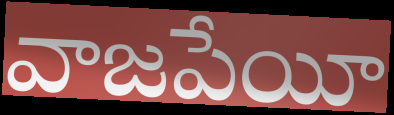
వాజపేయీ